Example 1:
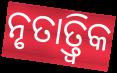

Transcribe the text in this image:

ନୃତାତ୍ତ୍ବିକ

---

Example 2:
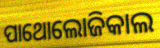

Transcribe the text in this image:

ପାଥୋଲୋଜିକାଲ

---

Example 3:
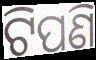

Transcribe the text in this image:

ଟିପଣି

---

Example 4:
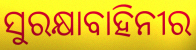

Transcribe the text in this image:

ସୁରକ୍ଷାବାହିନୀର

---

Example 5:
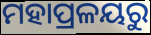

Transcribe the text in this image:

ମହାପ୍ରଳୟରୁ